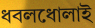
ধবলধোলাই